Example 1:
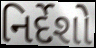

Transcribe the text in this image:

નિર્દેશો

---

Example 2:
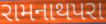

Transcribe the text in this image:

રામનાથપરા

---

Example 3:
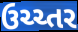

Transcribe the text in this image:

ઉચ્ચ્તર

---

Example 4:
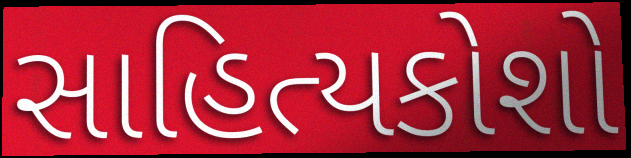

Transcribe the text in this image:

સાહિત્યકોશો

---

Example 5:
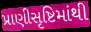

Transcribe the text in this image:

પ્રાણીસૃષ્ટિમાંથી